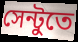
সেন্টুতে